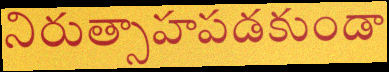
నిరుత్సాహపడకుండా